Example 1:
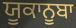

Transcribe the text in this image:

ਯੂਕਾਨੂਬਾ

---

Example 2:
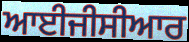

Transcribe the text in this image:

ਆਈਜੀਸੀਆਰ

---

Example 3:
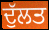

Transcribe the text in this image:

ਦੁੱਲਤ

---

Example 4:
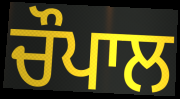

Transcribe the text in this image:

ਚੌਪਾਲ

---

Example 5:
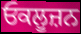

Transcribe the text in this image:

ਓਕਲੂਜ਼ਨ